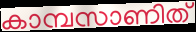
കാമ്പസാണിത്